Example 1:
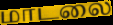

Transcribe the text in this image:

மாடலை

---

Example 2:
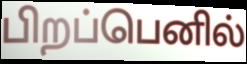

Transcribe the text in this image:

பிறப்பெனில்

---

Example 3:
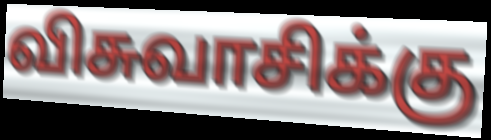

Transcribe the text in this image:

விசுவாசிக்கு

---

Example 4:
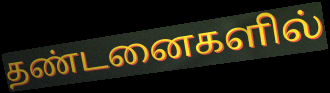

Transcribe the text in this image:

தண்டனைகளில்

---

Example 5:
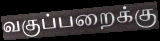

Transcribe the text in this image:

வகுப்பறைக்கு